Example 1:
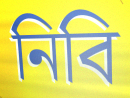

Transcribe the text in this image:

নিবি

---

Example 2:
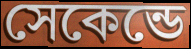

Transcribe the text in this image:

সেকেন্ডে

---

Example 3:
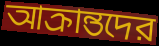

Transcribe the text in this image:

আক্রান্তদের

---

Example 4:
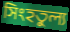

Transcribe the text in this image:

সিংহতুল্য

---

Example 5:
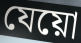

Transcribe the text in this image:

যেয়ো